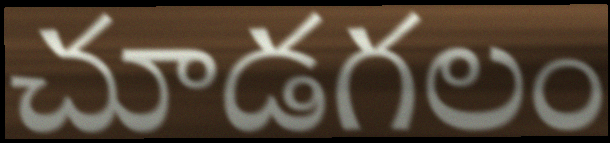
చూడగలం